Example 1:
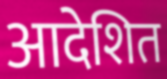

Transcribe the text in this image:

आदेशित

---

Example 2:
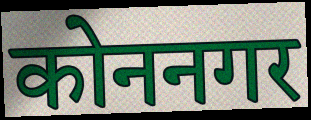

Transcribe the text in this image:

कोननगर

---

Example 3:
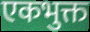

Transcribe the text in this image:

एकभुक्त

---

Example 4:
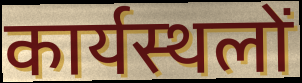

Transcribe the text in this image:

कार्यस्थलों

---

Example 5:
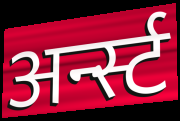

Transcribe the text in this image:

अर्न्स्ट